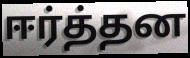
ஈர்த்தன